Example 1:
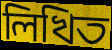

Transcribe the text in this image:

লিখিত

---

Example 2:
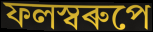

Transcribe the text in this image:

ফলস্বৰুপে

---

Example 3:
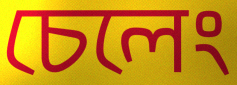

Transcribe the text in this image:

চেলেং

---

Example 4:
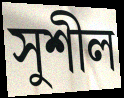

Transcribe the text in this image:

সুশীল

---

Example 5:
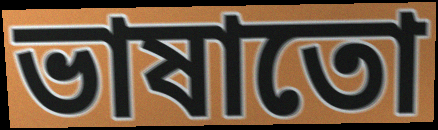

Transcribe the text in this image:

ভাষাতো